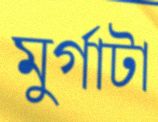
মুর্গাটা